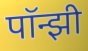
पॉन्झी